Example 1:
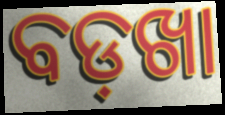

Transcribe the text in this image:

ବଡ଼ଖା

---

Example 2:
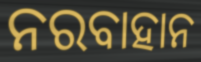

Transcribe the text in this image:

ନରବାହାନ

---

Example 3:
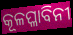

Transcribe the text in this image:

କୂଳପ୍ଳାବିନୀ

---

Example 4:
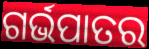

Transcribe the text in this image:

ଗର୍ଭପାତର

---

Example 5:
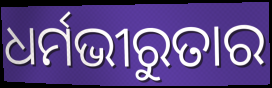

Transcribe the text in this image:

ଧର୍ମଭୀରୁତାର